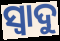
ସ୍ଵାଦୁ